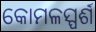
କୋମଳସ୍ପର୍ଶ